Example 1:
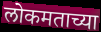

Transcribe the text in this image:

लोकमताच्या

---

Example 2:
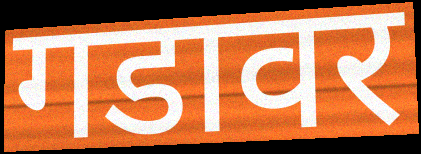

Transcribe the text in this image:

गडावर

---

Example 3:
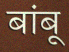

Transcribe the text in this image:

बांबू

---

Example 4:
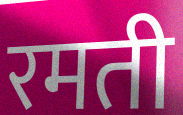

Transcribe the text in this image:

रमती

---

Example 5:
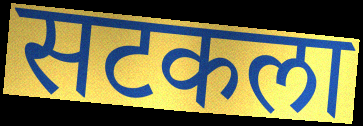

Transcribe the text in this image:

सटकला